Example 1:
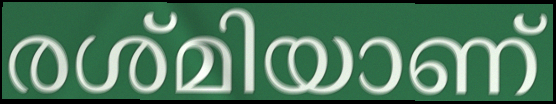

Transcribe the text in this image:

രശ്മിയാണ്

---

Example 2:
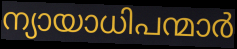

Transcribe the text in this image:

ന്യായാധിപന്മാർ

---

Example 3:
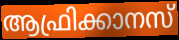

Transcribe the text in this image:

ആഫ്രിക്കാനസ്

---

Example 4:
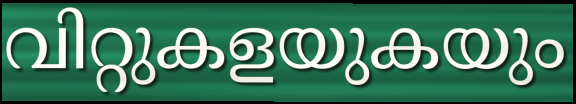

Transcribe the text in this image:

വിറ്റുകളയുകയും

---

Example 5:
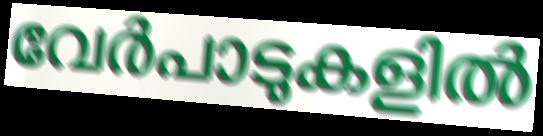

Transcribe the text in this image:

വേർപാടുകളിൽ